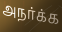
அநர்க்க